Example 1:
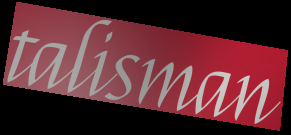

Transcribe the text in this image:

talisman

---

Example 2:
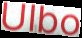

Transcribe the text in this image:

Ulbo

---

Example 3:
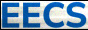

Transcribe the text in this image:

EECS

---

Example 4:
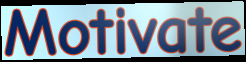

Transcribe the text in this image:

Motivate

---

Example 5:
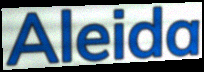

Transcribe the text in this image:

Aleida